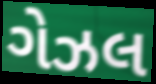
ગેઝલ